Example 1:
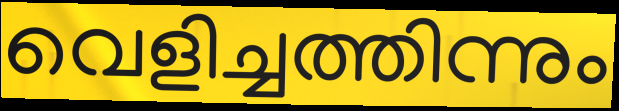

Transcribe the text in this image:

വെളിച്ചത്തിന്നും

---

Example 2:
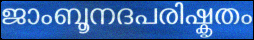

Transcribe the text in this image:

ജാംബൂനദപരിഷ്കൃതം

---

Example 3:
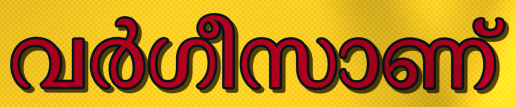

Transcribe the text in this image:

വർഗീസാണ്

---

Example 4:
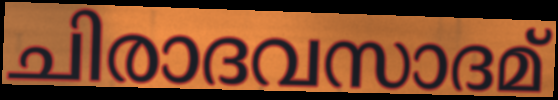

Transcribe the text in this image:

ചിരാദവസാദമ്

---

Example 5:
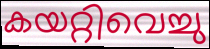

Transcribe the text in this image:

കയറ്റിവെച്ചു